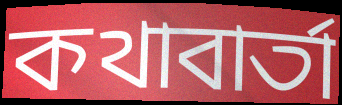
কথাবাৰ্তা